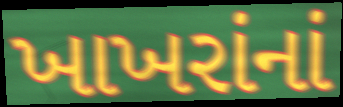
ખાખરાંનાં